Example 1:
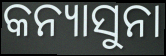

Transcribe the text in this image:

କନ୍ୟାସୁନା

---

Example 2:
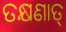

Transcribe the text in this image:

ତକ୍ଷଣାତ୍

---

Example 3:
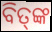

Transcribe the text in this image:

ବିତ୍‌ଙ୍କ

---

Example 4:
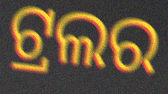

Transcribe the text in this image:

ଟ୍ରଲର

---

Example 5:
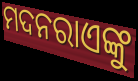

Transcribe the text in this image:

ମଦନରାଏଙ୍କୁ